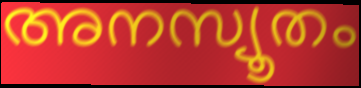
അനസ്യൂതം